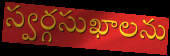
స్వర్గసుఖాలను